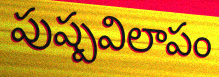
పుష్పవిలాపం